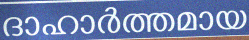
ദാഹാർത്തമായ